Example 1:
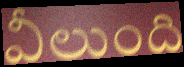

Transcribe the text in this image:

వీలుంది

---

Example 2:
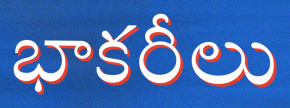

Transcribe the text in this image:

భాకరీలు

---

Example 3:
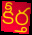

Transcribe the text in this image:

కీర్త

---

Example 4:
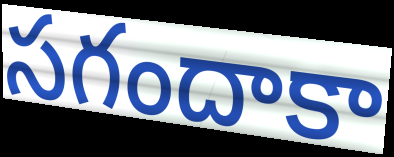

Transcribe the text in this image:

సగందాకా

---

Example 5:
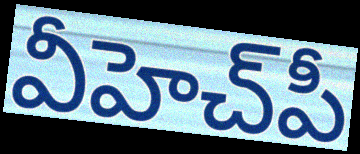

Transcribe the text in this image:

వీహెచ్‌పీ